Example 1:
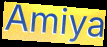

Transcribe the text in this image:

Amiya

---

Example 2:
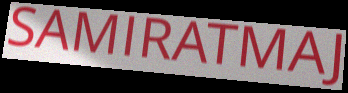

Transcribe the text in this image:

SAMIRATMAJ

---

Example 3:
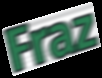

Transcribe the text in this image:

Fraz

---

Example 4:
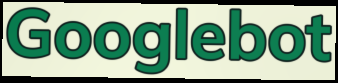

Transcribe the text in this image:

Googlebot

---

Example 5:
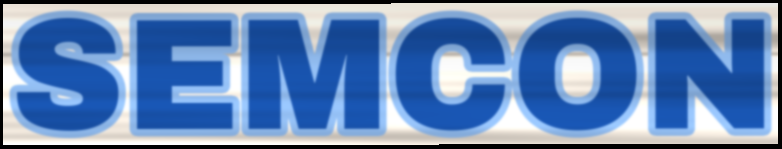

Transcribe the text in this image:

SEMCON